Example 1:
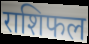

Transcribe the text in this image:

राशिफल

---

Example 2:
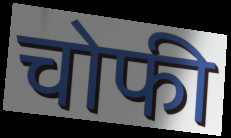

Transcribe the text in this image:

चोफी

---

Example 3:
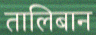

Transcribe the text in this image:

तालिबान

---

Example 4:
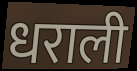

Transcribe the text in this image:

धराली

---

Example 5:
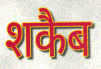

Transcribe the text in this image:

शकैब